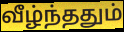
வீழ்ந்ததும்